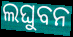
ଲଘୁବନ